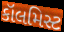
કૉલમિસ્ટ